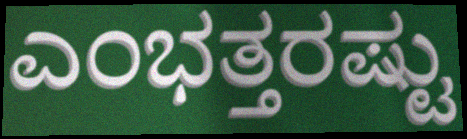
ಎಂಭತ್ತರಷ್ಟು